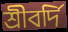
শ্রীবর্দি